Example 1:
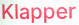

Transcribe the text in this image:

Klapper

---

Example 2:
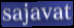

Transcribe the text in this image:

sajavat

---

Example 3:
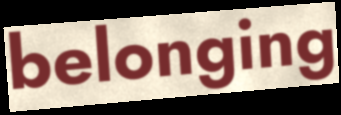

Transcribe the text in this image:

belonging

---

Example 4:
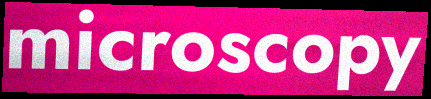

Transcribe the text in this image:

microscopy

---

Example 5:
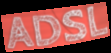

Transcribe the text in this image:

ADSL